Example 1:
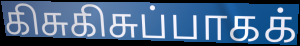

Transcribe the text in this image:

கிசுகிசுப்பாகக்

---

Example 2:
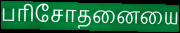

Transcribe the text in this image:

பரிசோதனையை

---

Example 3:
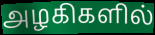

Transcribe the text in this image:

அழகிகளில்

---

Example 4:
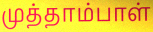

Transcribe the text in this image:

முத்தாம்பாள்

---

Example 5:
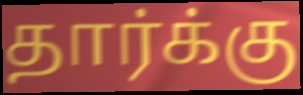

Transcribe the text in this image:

தார்க்கு